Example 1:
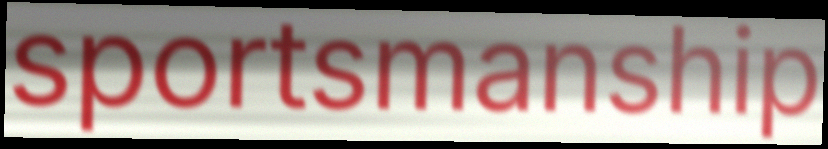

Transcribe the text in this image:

sportsmanship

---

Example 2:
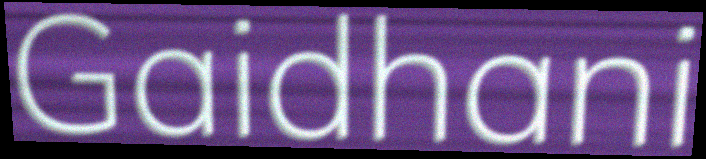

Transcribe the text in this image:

Gaidhani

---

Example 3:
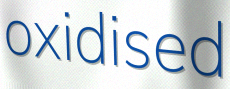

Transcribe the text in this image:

oxidised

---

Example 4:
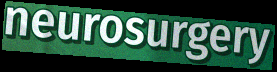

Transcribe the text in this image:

neurosurgery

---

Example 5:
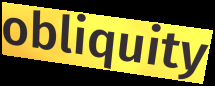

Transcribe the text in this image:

obliquity